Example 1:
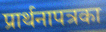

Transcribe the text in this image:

प्रार्थनापत्रका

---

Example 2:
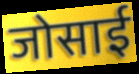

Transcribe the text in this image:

जोसाई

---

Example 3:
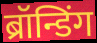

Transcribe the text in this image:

ब्रॉन्डिंग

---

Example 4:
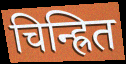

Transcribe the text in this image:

चिन्ह्रित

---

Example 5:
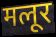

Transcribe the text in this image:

मलूर